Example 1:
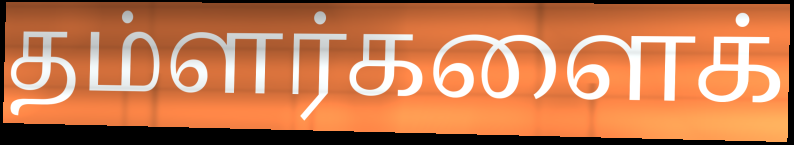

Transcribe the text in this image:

தம்ளர்களைக்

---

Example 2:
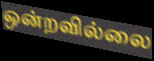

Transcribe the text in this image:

ஒன்றவில்லை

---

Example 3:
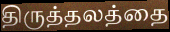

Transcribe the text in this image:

திருத்தலத்தை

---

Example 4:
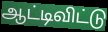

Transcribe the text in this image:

ஆட்டிவிட்டு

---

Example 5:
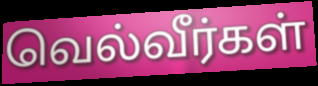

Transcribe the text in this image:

வெல்வீர்கள்